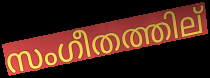
സംഗീതത്തില്